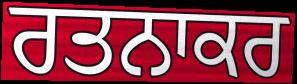
ਰਤਨਾਕਰ